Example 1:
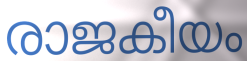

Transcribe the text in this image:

രാജകീയം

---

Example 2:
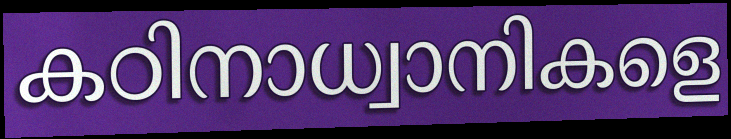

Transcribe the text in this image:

കഠിനാധ്വാനികളെ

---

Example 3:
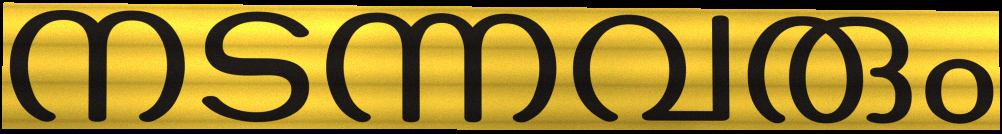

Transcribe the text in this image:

നടന്നവരും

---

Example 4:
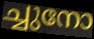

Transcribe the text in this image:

ച്ചുനോ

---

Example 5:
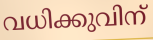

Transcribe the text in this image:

വധിക്കുവിന്